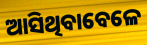
ଆସିଥିବାବେଳେ